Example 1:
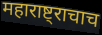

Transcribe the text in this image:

महाराष्ट्राचाच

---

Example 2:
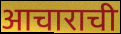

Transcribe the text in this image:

आचाराची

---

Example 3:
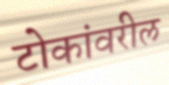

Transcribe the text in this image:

टोकांवरील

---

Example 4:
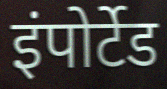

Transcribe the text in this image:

इंपोर्टेड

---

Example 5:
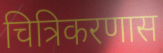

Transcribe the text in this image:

चित्रिकरणास